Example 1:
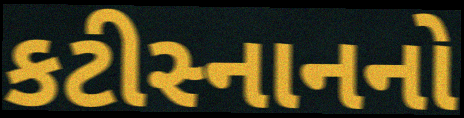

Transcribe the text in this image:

કટીસ્નાનનો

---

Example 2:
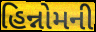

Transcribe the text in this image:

હિન્નોમની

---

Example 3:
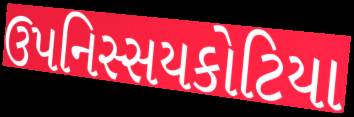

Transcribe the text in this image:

ઉપનિસ્સયકોટિયા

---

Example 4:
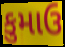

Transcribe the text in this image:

કુમાઉ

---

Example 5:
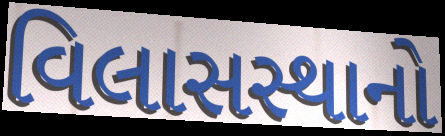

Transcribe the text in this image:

વિલાસસ્થાનો